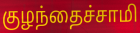
குழந்தைச்சாமி